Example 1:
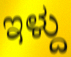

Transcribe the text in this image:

ಇಳ್ದು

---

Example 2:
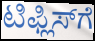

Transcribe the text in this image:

ಟಿಫ್ಲಿಸ್‍ಗೆ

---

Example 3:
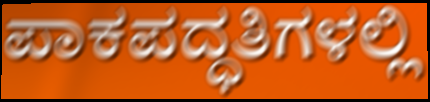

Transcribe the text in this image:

ಪಾಕಪದ್ಧತಿಗಳಲ್ಲಿ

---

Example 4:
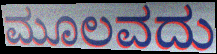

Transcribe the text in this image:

ಮೂಲವದು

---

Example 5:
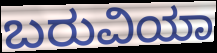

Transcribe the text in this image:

ಬರುವಿಯಾ